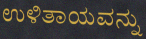
ಉಳಿತಾಯವನ್ನು